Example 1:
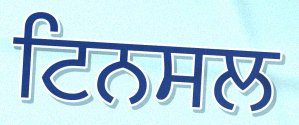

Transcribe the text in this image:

ਟਿਨਸਲ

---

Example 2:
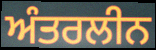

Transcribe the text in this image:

ਅੰਤਰਲੀਨ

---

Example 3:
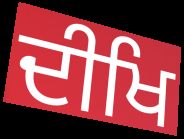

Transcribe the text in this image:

ਦੀਖਿ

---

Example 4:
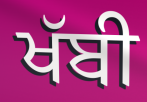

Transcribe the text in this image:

ਖੱਬੀ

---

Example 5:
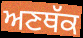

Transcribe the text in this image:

ਅਣਥੱਕ